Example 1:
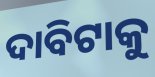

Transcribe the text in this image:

ଦାବିଟାକୁ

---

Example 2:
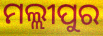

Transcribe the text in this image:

ମଲ୍ଲୀପୁର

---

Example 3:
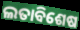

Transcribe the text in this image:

ଲତାବିଶେଷ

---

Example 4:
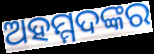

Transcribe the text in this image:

ଅହମ୍ମଦଙ୍କର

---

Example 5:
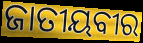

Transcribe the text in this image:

ଜାତୀୟବୀର